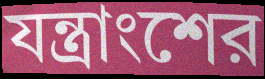
যন্ত্রাংশের